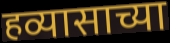
हव्यासाच्या